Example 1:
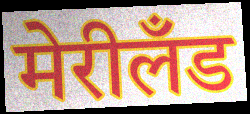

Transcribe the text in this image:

मेरीलँड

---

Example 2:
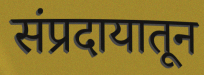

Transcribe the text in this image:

संप्रदायातून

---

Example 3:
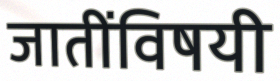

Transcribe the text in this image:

जातींविषयी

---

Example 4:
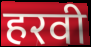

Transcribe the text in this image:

हरवी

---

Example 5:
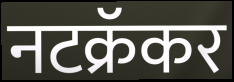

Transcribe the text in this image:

नटक्रॅकर